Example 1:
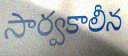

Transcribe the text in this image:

సార్వకాలీన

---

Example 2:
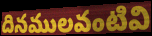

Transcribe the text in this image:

దినములవంటివి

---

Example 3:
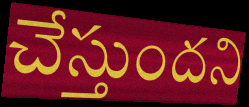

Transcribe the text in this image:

చేస్తుందని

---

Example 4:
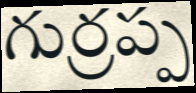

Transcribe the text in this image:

గుర్రప్ప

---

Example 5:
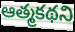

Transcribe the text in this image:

ఆత్మకథని